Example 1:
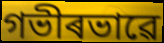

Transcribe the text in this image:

গভীৰভাৱে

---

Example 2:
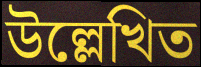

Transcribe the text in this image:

উল্লেখিত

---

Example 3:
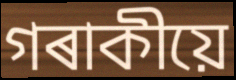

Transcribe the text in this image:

গৰাকীয়ে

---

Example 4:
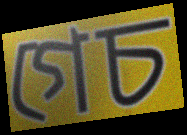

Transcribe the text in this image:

গেচ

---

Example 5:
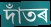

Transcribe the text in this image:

দাঁতৰ